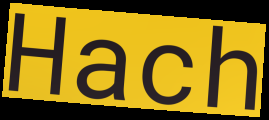
Hach